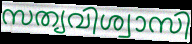
സത്യവിശ്വാസി